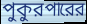
পুকুরপারের